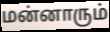
மன்னாரும்